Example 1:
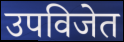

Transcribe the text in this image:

उपविजेत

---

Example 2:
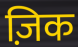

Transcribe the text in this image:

ज़िक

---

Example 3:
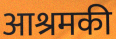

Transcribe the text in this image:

आश्रमकी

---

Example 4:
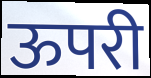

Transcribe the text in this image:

ऊपरी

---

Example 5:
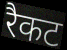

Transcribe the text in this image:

रैकट